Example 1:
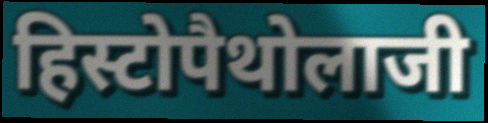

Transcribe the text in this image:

हिस्टोपैथोलाजी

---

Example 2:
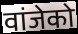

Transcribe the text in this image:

वांजेको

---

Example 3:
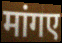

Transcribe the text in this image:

मांगए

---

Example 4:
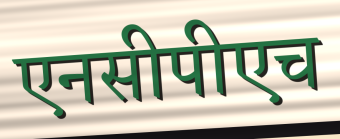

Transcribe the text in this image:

एनसीपीएच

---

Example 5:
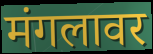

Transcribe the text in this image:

मंगलावर